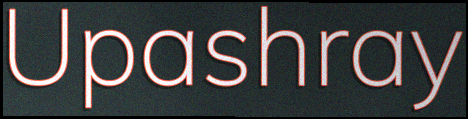
Upashray